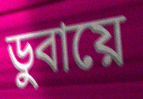
ডুবায়ে